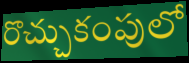
రొచ్చుకంపులో